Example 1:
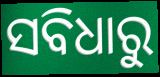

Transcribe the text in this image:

ସବିଧାରୁ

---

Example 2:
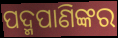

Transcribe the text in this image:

ପଦ୍ମପାଣିଙ୍କର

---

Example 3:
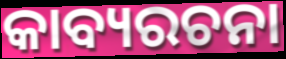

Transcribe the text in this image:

କାବ୍ୟରଚନା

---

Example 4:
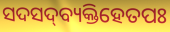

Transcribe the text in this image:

ସଦସଦ୍‌ବ୍ୟକ୍ତିହେତପଃ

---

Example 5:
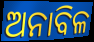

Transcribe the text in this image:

ଅନାବିଳ